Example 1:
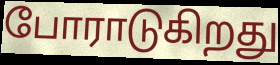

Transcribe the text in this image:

போராடுகிறது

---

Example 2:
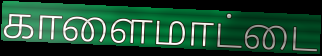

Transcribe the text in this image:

காளைமாட்டை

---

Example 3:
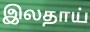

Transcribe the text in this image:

இலதாய்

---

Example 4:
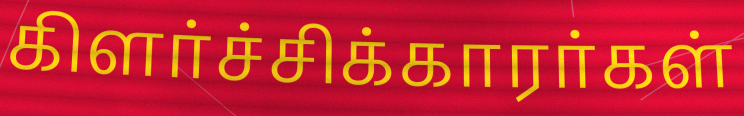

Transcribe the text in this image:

கிளர்ச்சிக்காரர்கள்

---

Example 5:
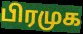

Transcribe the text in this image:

பிரமுக